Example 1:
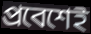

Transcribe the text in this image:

প্রবেশেই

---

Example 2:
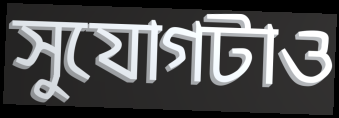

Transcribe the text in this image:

সুযোগটাও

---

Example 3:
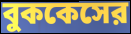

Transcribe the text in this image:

বুককেসের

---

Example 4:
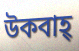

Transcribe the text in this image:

উকবাহ্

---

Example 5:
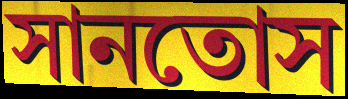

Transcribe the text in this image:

সানতোস